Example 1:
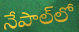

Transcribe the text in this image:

నేపాల్‌లో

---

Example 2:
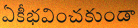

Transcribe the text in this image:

ఏకీభవించకుండా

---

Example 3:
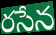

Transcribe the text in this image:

రసేన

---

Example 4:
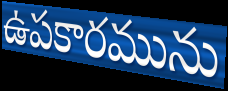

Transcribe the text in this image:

ఉపకారమును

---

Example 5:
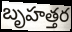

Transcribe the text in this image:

బృహత్తర